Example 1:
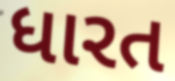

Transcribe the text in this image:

ધારત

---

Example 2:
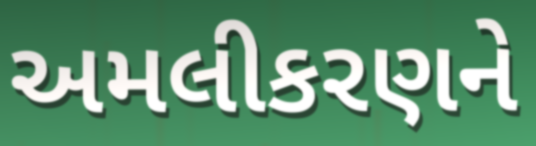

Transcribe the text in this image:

અમલીકરણને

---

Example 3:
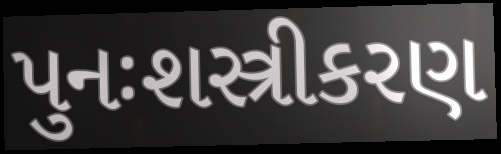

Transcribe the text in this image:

પુનઃશસ્ત્રીકરણ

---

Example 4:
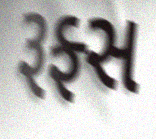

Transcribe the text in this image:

રૂફ્સ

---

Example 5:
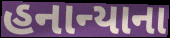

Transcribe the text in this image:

હનાન્યાના